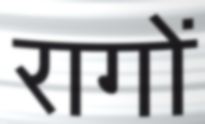
रागों